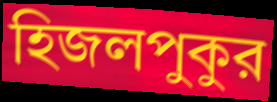
হিজলপুকুর